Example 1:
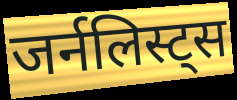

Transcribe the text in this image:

जर्नलिस्ट्स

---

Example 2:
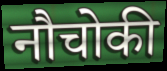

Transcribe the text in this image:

नौचोकी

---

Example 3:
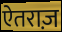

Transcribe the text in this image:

ऐतराज़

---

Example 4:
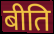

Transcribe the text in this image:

बीति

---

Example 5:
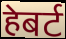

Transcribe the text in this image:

हेबर्ट